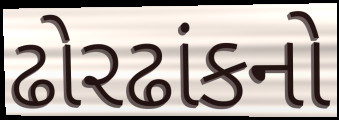
ઢોરઢાંકનો